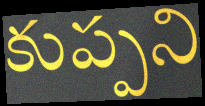
కుప్పని